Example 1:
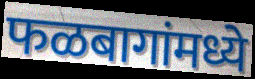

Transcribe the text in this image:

फळबागांमध्ये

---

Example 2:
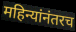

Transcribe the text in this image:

महिन्यांनंतरच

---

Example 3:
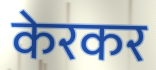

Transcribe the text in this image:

केरकर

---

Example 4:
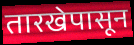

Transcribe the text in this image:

तारखेपासून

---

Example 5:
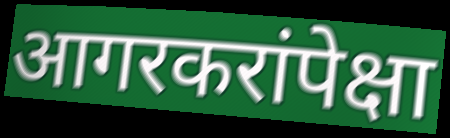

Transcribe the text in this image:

आगरकरांपेक्षा